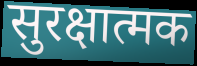
सुरक्षात्मक